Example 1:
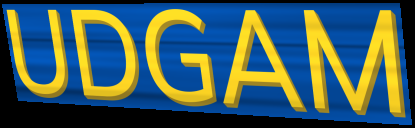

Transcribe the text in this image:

UDGAM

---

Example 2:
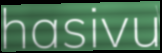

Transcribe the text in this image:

hasivu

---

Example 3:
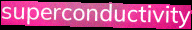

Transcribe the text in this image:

superconductivity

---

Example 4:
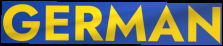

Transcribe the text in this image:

GERMAN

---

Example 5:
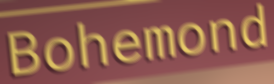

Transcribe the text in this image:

Bohemond